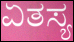
ಏತಸ್ಯ